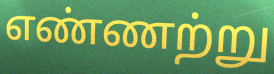
எண்ணற்று